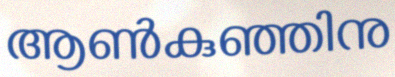
ആൺകുഞ്ഞിനു